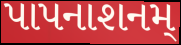
પાપનાશનમ્